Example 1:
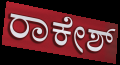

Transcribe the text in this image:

ರಾಕೇಶ್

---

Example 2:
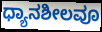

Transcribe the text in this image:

ಧ್ಯಾನಶೀಲವೂ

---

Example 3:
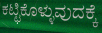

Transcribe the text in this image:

ಕಟ್ಟಿಕೊಳ್ಳುವುದಕ್ಕೆ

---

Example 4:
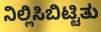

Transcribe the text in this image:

ನಿಲ್ಲಿಸಿಬಿಟ್ಟಿತು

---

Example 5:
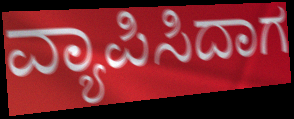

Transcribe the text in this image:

ವ್ಯಾಪಿಸಿದಾಗ